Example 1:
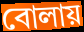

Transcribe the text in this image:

বোলায়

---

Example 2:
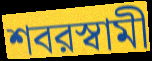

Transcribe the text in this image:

শবরস্বামী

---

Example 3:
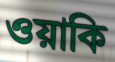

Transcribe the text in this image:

ওয়াকি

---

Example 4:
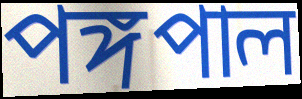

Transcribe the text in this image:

পঙ্গপাল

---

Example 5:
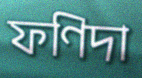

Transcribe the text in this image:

ফণিদা